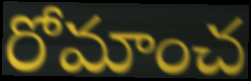
రోమాంచ